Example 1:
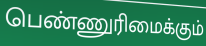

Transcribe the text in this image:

பெண்ணுரிமைக்கும்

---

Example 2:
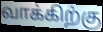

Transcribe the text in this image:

வாக்கிற்கு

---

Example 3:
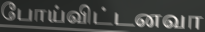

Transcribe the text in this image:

போய்விட்டனவா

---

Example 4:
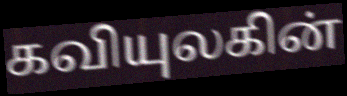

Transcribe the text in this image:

கவியுலகின்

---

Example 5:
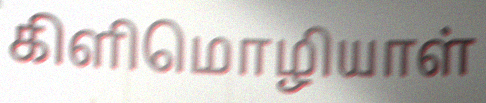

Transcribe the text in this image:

கிளிமொழியாள்